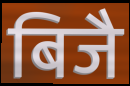
बिजै